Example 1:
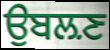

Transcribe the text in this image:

ਉਬਲ਼ਣ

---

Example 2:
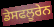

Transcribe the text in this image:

ਡੇਸਫਲੂਰੇਨ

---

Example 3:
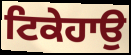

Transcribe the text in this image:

ਟਿਕੇਹਾਉ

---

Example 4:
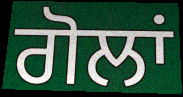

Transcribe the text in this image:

ਗੋਲਾਂ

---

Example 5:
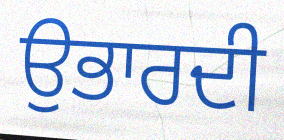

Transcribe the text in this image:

ਉਭਾਰਦੀ